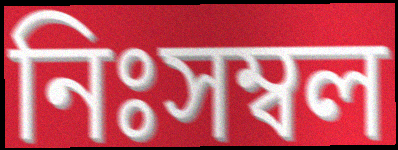
নিঃসম্বল